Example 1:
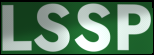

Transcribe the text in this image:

LSSP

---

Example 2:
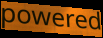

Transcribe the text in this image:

powered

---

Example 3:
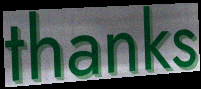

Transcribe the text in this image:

thanks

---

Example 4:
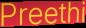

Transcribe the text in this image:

Preethi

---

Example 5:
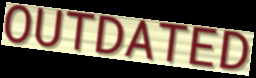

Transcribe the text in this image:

OUTDATED